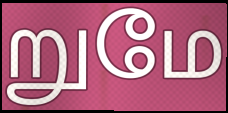
றுமே